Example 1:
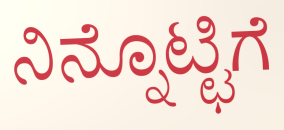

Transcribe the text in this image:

ನಿನ್ನೊಟ್ಟಿಗೆ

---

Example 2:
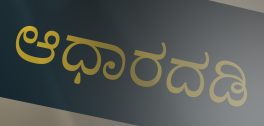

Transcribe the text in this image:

ಆಧಾರದಡಿ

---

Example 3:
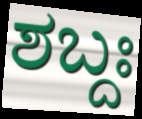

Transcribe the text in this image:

ಶಬ್ದಃ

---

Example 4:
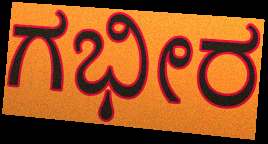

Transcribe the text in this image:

ಗಭೀರ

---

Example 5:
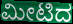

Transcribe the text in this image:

ಮೀಟಿದ